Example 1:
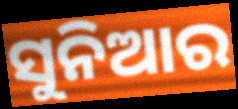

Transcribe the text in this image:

ସୁନିଆର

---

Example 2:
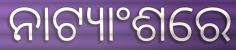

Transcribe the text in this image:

ନାଟ୍ୟାଂଶରେ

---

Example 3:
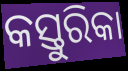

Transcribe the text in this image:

କସ୍ତୁରିକା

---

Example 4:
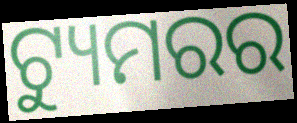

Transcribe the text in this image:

ଟ୍ୟୁମରର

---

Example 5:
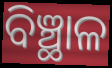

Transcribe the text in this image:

ବିଞ୍ଛାଳ